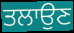
ਤਲਾਉਣ